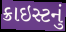
ક્રાઇસ્ટનું